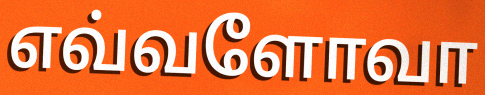
எவ்வளோவா